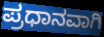
ಪ್ರಧಾನವಾಗಿ